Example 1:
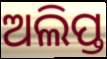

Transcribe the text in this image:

ଅଲିପ୍ତ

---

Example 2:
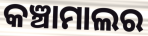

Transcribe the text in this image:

କଞ୍ଚାମାଲର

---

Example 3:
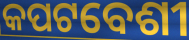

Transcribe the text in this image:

କପଟବେଶୀ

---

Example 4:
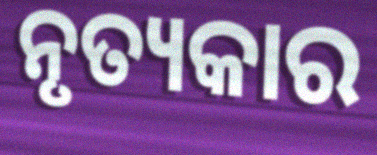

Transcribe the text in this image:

ନୃତ୍ୟକାର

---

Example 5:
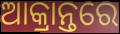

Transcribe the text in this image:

ଆକ୍ରାନ୍ତରେ